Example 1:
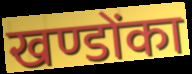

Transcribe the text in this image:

खण्डोंका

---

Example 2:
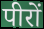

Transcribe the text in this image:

पीरों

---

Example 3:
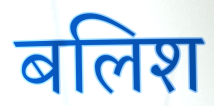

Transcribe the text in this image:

बलिश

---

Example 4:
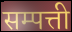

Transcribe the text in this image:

सम्पत्ती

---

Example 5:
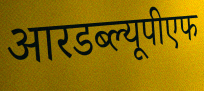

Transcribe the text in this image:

आरडब्ल्यूपीएफ